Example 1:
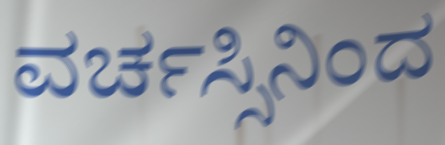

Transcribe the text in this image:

ವರ್ಚಸ್ಸಿನಿಂದ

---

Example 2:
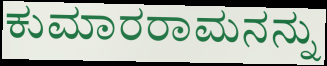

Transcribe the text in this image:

ಕುಮಾರರಾಮನನ್ನು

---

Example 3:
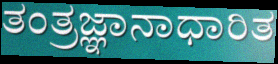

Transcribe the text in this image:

ತಂತ್ರಜ್ಞಾನಾಧಾರಿತ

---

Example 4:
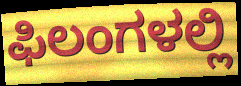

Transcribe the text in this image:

ಫಿಲಂಗಳಲ್ಲಿ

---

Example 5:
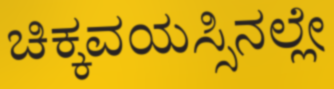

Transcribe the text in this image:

ಚಿಕ್ಕವಯಸ್ಸಿನಲ್ಲೇ